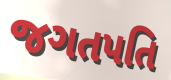
જગતપતિ